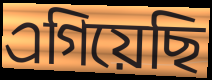
এগিয়েছি